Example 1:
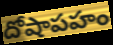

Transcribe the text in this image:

దోషాపహం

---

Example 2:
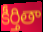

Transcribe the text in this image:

కీర్తితా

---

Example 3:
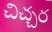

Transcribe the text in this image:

చిచ్చర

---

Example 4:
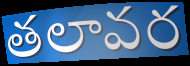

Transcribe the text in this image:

తలావర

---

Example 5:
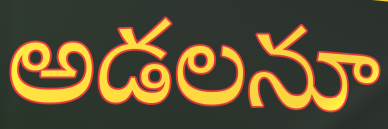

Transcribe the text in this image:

అడలనూ